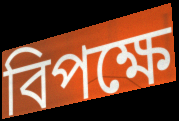
বিপক্ষে